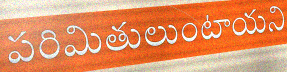
పరిమితులుంటాయని